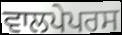
ਵਾਲਪੇਪਰਸ